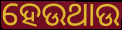
ହେଉଥାଉ